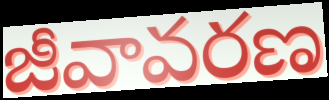
జీవావరణ